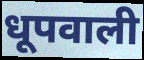
धूपवाली